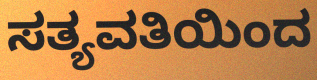
ಸತ್ಯವತಿಯಿಂದ